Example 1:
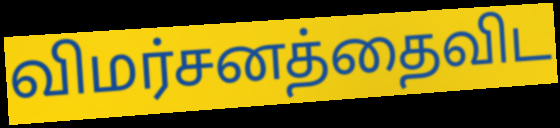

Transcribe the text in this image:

விமர்சனத்தைவிட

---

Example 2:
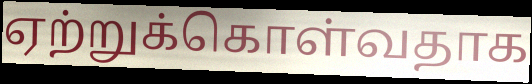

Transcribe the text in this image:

ஏற்றுக்கொள்வதாக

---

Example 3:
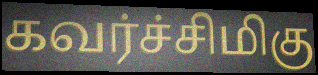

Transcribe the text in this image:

கவர்ச்சிமிகு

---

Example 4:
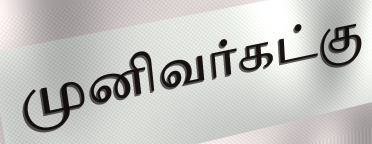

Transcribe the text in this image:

முனிவர்கட்கு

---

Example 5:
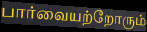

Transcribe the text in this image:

பார்வையற்றோரும்